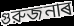
গুৰুজনাৰ